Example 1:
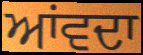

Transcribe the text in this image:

ਆਂਵਦਾ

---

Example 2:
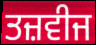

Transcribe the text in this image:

ਤਜ਼ਵੀਜ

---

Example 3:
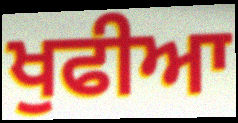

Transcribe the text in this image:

ਖੁਫੀਆ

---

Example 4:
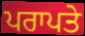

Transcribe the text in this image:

ਪਰਾਪਤੇ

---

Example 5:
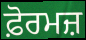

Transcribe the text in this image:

ਫ਼ੋਰਮਜ਼